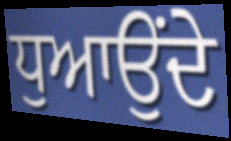
ਧੁਆਉਂਦੇ